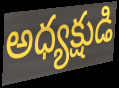
అధ్యక్షుడి